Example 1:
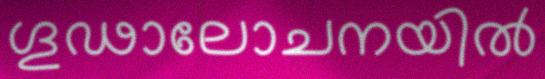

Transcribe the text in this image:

ഗൂഢാലോചനയിൽ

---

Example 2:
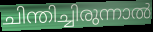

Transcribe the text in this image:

ചിന്തിച്ചിരുന്നാൽ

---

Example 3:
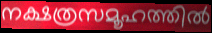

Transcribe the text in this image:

നക്ഷത്രസമൂഹത്തിൽ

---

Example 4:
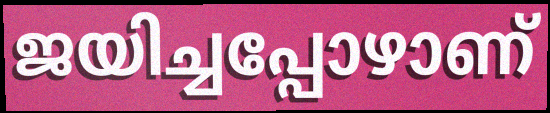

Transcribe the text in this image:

ജയിച്ചപ്പോഴാണ്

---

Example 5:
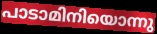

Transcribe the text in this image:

പാടാമിനിയൊന്നു